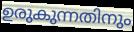
ഉരുകുന്നതിനും